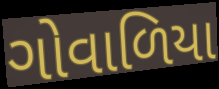
ગોવાળિયા